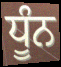
ਧੂੰਨ